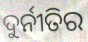
ଦୁର୍ନୀତିର